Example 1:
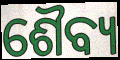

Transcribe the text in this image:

ଶୈବ୍ୟ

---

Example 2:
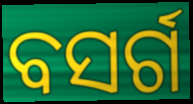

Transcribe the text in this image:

ବସର୍ଗ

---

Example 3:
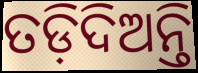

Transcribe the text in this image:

ତଡ଼ିଦିଅନ୍ତି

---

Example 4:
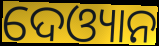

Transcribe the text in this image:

ଦେଓ୍ୟାନ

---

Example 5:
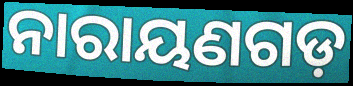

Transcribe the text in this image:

ନାରାୟଣଗଡ଼